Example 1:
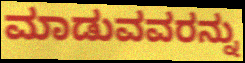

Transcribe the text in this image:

ಮಾಡುವವರನ್ನು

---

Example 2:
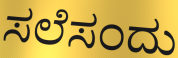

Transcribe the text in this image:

ಸಲೆಸಂದು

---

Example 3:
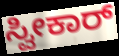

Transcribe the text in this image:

ಸ್ವೀಕಾರ್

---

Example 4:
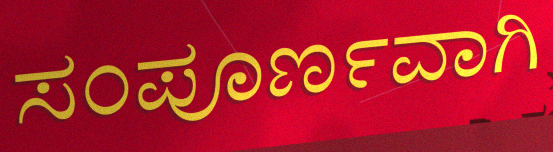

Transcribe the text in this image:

ಸಂಪೂರ್ಣವಾಗಿ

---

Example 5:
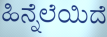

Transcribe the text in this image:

ಹಿನ್ನೆಲೆಯಿದೆ